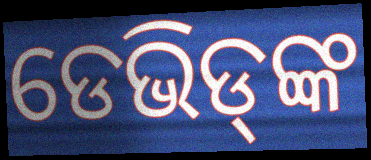
ଡେଭିଡ୍‌ଙ୍କ